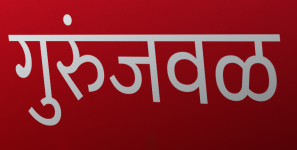
गुरुंजवळ